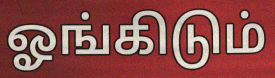
ஓங்கிடும்